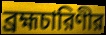
ব্রহ্মচারিণীর